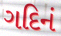
ગદિનં